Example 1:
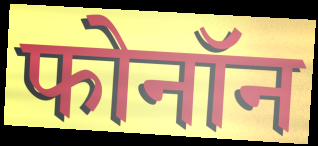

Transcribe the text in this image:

फोनॉन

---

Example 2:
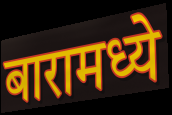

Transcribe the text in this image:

बारामध्ये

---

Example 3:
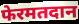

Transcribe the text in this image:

फेरमतदान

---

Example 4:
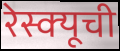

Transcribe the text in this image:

रेस्क्यूची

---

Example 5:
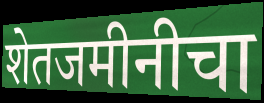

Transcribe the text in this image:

शेतजमीनीचा